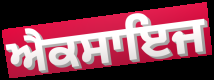
ਐਕਸਾਇਜ